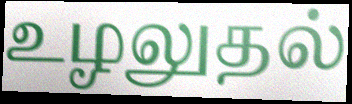
உழலுதல்